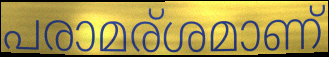
പരാമര്ശമാണ്